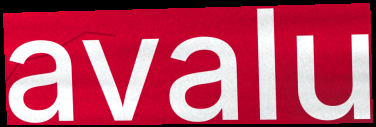
avalu